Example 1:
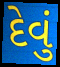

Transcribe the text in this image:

દેવું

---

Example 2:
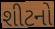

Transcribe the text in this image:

શીટનો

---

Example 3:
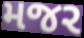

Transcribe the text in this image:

મજર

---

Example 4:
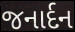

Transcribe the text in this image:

જનાર્દન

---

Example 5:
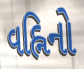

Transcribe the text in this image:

વહ્નિનો